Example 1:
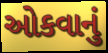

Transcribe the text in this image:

ઓકવાનું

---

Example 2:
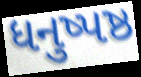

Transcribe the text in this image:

ધનુષ્પષ્ઠ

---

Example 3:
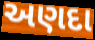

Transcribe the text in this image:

અણદા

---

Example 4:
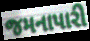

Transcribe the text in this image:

જમનાપારી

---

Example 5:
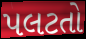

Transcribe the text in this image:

પલટતો